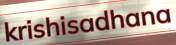
krishisadhana